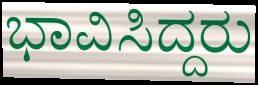
ಭಾವಿಸಿದ್ದರು